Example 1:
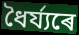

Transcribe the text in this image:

ধৈৰ্য্যৰে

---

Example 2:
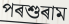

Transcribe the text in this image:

পৰশুৰাম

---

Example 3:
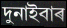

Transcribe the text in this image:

দুনাইবাৰ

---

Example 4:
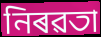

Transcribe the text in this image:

নিৰৱতা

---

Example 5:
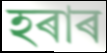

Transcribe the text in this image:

হৰাৰ